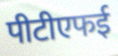
पीटीएफई